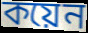
কয়েন